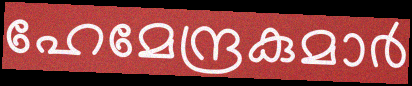
ഹേമേന്ദ്രകുമാർ